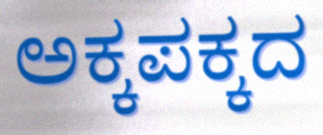
ಅಕ್ಕಪಕ್ಕದ